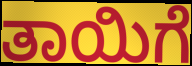
ತಾಯಿಗೆ